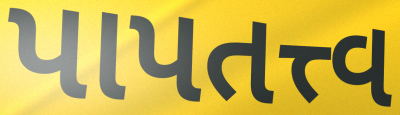
પાપતત્ત્વ